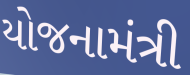
યોજનામંત્રી